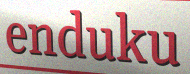
enduku